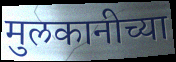
मुलकानीच्या